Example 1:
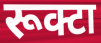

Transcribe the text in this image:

रूक्टा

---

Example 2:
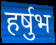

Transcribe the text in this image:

हर्षुभ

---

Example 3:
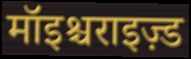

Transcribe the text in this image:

मॉइश्चराइज़्ड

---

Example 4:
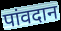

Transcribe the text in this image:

पांवदान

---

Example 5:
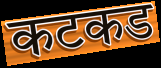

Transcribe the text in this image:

कटकड